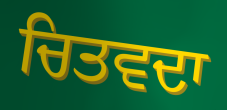
ਚਿਤਵਦਾ